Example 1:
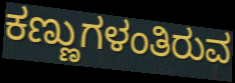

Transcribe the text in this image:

ಕಣ್ಣುಗಳಂತಿರುವ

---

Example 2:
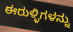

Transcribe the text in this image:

ಈರುಳ್ಳಿಗಳನ್ನು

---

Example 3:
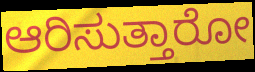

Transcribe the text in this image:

ಆರಿಸುತ್ತಾರೋ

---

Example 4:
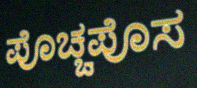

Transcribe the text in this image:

ಪೊಚ್ಚಪೊಸ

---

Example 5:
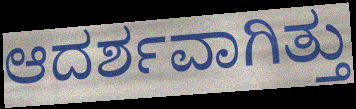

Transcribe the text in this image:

ಆದರ್ಶವಾಗಿತ್ತು